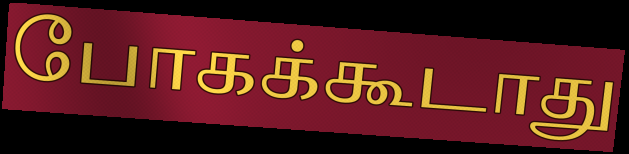
போகக்கூடாது